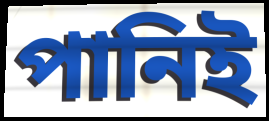
পানিই